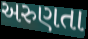
અરુણતા